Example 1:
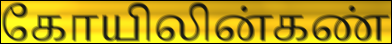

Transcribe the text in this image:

கோயிலின்கண்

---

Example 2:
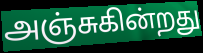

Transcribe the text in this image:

அஞ்சுகின்றது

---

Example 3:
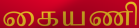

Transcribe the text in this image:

கையணி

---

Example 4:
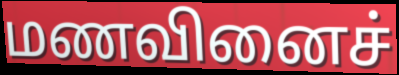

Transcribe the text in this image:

மணவினைச்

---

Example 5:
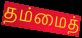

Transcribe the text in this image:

தம்மைத்